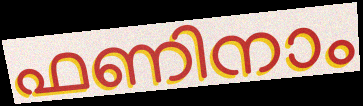
ഫണിനാം